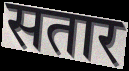
सतार